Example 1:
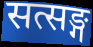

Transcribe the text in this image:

सत्सङ्ग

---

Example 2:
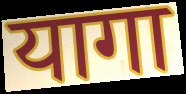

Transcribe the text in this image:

यागा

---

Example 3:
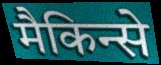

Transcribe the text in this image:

मैकिन्से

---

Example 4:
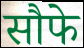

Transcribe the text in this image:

सौफे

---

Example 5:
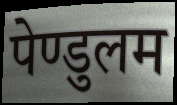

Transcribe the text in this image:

पेण्डुलम